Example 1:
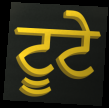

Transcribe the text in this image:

ਟੂਟੇ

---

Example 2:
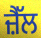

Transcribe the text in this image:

ਜ਼ੈੱਲ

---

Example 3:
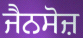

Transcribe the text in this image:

ਜੈਨਸੋਜ਼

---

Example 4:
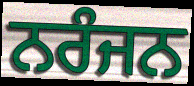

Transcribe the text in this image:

ਨਰੰਜਨ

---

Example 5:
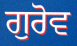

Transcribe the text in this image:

ਗੁਰੋਵ